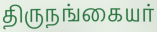
திருநங்கையர்